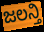
ಜಲನ್ತಿ